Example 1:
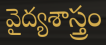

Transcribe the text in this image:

వైద్యశాస్త్రం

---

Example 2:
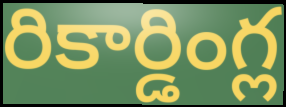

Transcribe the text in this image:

రికార్డింగ్ల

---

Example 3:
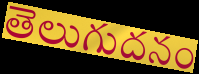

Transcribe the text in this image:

తెలుగుదనం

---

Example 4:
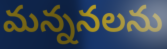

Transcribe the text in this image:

మన్ననలను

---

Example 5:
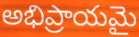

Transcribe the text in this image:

అభిప్రాయమై